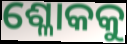
ଶ୍ଳୋକକୁ